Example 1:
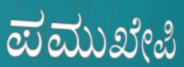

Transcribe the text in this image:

ಪಮುಖೇಪಿ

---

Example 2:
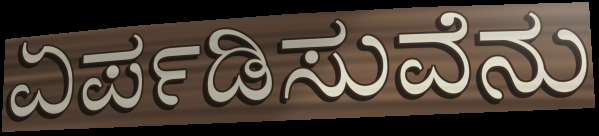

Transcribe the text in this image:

ಏರ್ಪಡಿಸುವೆನು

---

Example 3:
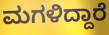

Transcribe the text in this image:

ಮಗಳಿದ್ದಾರೆ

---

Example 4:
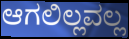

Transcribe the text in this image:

ಆಗಲಿಲ್ಲವಲ್ಲ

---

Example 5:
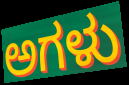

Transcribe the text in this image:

ಅಗಳು